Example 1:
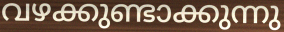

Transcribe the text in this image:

വഴക്കുണ്ടാക്കുന്നു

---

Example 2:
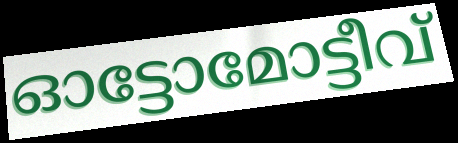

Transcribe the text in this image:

ഓട്ടോമോട്ടീവ്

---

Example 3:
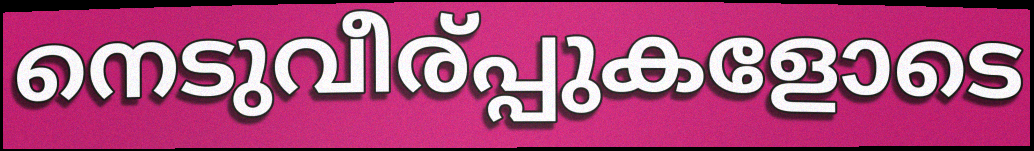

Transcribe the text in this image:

നെടുവീര്പ്പുകളോടെ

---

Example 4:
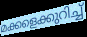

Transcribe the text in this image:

മക്കളെക്കുറിച്ച്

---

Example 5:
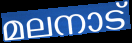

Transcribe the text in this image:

മലനാട്